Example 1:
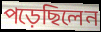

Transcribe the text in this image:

পড়েছিলেন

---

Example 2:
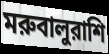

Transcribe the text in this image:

মরুবালুরাশি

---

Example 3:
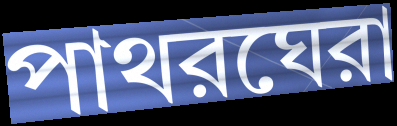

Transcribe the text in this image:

পাথরঘেরা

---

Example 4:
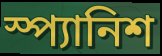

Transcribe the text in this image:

স্প্যানিশ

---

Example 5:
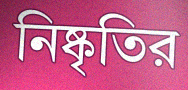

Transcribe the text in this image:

নিষ্কৃতির